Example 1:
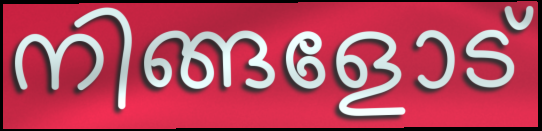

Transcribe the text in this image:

നിങ്ങളോട്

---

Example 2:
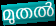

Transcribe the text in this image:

മുതൽ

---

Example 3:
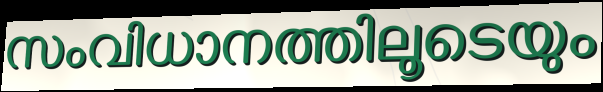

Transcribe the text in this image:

സംവിധാനത്തിലൂടെയും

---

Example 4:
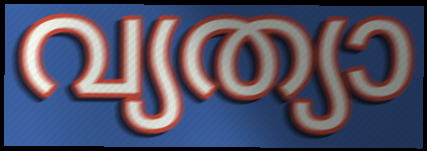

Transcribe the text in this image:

വ്യത്യാ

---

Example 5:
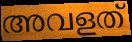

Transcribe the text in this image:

അവളത്